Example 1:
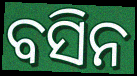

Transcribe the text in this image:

ବସିନ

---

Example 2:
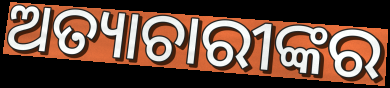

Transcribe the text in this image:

ଅତ୍ୟାଚାରୀଙ୍କର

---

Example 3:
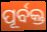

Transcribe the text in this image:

ପୂର୍ବକ୍ତ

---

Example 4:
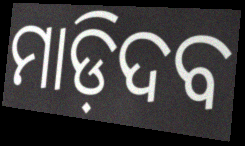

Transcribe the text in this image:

ମାଡ଼ିଦବ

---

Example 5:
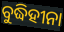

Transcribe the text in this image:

ବୁଦ୍ଧିହୀନା